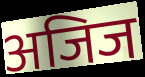
अजिज